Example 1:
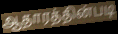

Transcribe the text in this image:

ஆதாரத்தின்படி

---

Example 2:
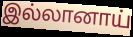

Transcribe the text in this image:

இல்லானாய்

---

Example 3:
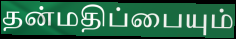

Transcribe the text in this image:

தன்மதிப்பையும்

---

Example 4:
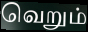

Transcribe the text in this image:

வெறும்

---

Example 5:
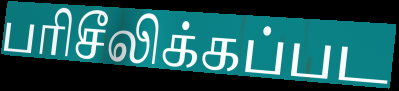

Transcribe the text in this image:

பரிசீலிக்கப்பட